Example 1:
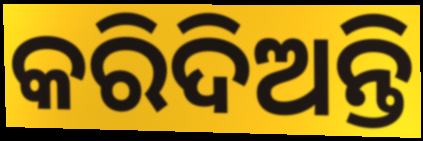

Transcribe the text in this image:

କରିଦିଅନ୍ତି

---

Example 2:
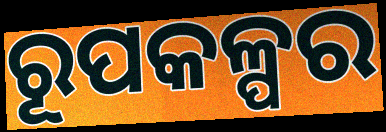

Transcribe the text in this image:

ରୂପକଳ୍ପର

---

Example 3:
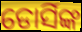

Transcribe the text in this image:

ଡୋର୍ସିଙ୍କ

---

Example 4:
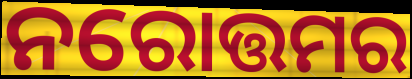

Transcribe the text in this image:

ନରୋତ୍ତମର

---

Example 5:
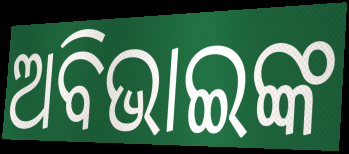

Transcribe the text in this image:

ଅବିଭାଇଙ୍କ